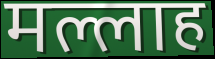
मल्‍लाह